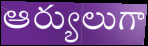
ఆర్యులుగా